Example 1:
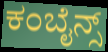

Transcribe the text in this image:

ಕಂಬೈನ್ಸ್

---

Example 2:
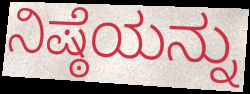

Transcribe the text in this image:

ನಿಷ್ಠೆಯನ್ನು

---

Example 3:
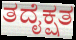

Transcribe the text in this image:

ತದೈಕ್ಷತ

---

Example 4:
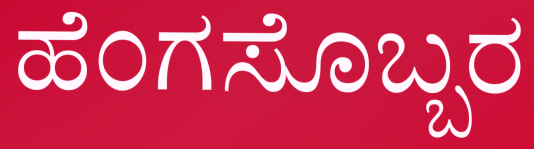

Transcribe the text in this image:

ಹೆಂಗಸೊಬ್ಬರ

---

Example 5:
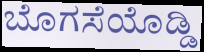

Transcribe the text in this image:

ಬೊಗಸೆಯೊಡ್ಡಿ